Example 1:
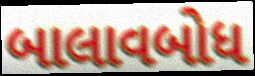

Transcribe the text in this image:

બાલાવબોધ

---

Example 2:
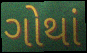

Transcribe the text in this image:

ગોથાં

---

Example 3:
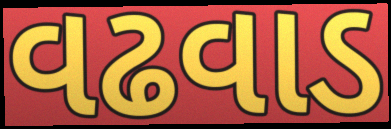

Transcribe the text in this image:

વઢવાડ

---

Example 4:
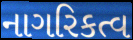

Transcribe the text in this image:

નાગરિકત્વ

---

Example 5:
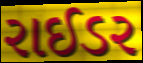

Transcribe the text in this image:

રાઈડર